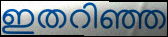
ഇതറിഞ്ഞ